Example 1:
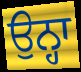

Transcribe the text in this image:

ਉਨ੍ਹਾ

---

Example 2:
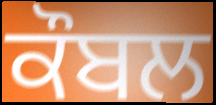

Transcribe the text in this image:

ਕੌਬਲ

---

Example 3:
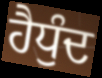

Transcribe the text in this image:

ਹੈਧੁੰਦ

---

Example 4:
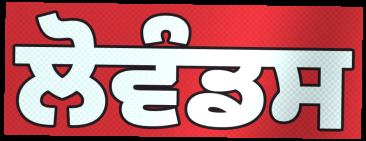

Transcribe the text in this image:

ਲੋਵੰਡਸ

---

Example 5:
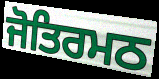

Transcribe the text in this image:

ਜੋਤਿਰਮਠ